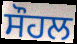
ਸੌਹਲ